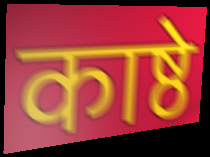
काष्ठे